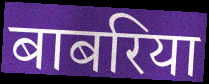
बाबरिया